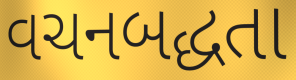
વચનબદ્ધતા